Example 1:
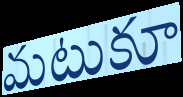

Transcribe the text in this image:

మటుకూ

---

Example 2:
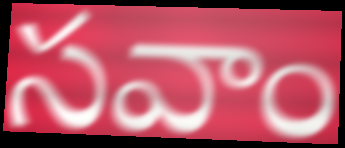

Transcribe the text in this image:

సవాం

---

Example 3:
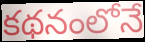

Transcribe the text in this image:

కథనంలోనే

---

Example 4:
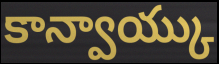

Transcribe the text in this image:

కాన్వాయ్కు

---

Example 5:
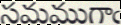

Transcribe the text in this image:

సమముగాఁ